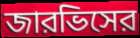
জারভিসের